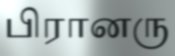
பிரானரு